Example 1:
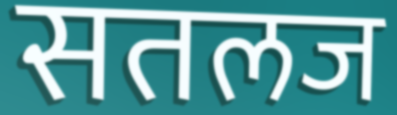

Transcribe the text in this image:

सतलज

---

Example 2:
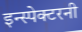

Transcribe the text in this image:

इन्स्पेक्टरनी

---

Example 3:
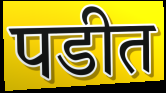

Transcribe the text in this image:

पडीत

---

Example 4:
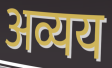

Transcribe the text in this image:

अव्यय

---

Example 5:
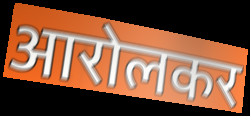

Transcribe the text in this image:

आरोलकर